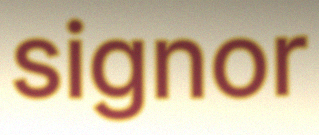
signor